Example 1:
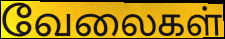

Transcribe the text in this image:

வேலைகள்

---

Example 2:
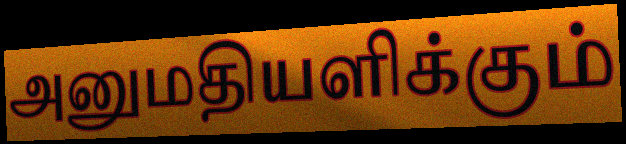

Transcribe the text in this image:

அனுமதியளிக்கும்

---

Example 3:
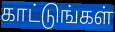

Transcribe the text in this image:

காட்டுங்கள்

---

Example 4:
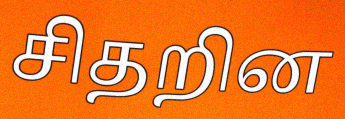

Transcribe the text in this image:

சிதறின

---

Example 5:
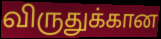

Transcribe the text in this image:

விருதுக்கான